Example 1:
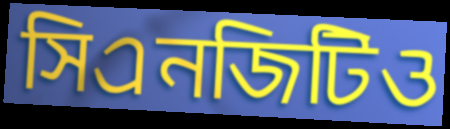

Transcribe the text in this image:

সিএনজিটিও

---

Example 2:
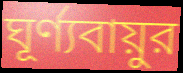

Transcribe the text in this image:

ঘূর্ণ্যবায়ুর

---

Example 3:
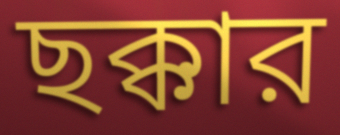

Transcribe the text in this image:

ছক্কার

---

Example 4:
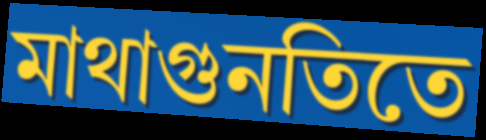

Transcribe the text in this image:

মাথাগুনতিতে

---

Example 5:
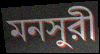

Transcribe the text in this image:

মনসুরী